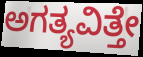
ಅಗತ್ಯವಿತ್ತೇ